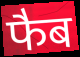
फैब